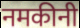
नमकीनी